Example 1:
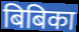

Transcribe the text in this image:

बिबिका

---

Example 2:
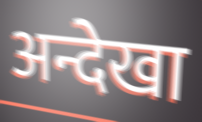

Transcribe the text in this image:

अन्देखा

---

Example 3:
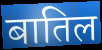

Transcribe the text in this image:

बातिल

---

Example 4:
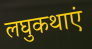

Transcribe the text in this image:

लघुकथाएं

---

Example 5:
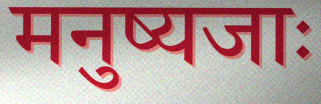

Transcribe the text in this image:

मनुष्यजाः